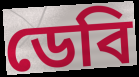
ডেবি